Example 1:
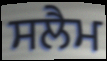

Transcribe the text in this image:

ਸਲੈਮ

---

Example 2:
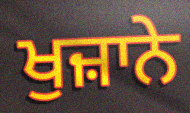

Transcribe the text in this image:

ਖੁਜ਼ਾਨੇ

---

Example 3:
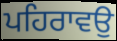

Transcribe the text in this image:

ਪਹਿਰਾਵਉ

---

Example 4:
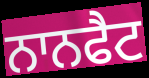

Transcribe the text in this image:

ਨਾਨਫੈਟ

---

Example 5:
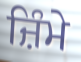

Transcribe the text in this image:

ਜ਼ਿੰਮੇ